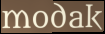
modak